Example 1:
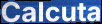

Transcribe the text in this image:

Calcuta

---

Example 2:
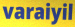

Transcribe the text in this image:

varaiyil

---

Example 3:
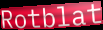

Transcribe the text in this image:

Rotblat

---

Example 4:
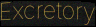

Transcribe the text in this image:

Excretory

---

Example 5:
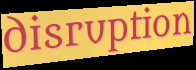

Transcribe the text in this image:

disruption